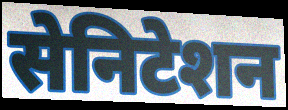
सेनिटेशन